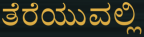
ತೆರೆಯುವಲ್ಲಿ